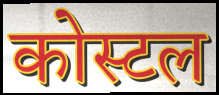
कोस्टल